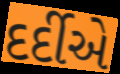
દર્દીએ